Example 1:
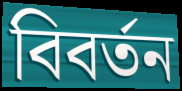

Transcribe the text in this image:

বিবৰ্তন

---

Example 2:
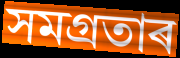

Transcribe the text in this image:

সমগ্ৰতাৰ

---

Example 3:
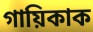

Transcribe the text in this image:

গায়িকাক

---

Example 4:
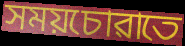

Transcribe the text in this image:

সময়চোৱাতে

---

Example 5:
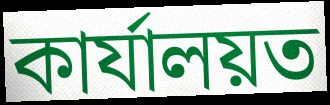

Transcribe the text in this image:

কাৰ্যালয়ত